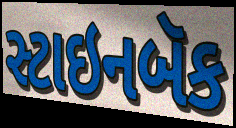
સ્ટાઇનબૅક